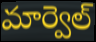
మార్వెల్